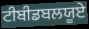
ਟੀਬੀਡਬਲਯੂਏ